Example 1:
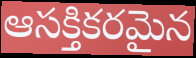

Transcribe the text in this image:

ఆసక్తికరమైన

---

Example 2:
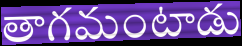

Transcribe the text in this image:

తాగమంటాడు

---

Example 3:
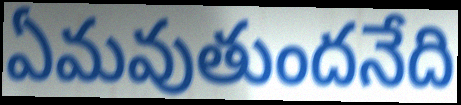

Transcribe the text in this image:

ఏమవుతుందనేది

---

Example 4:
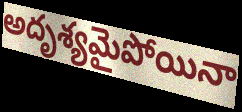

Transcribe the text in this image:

అదృశ్యమైపోయినా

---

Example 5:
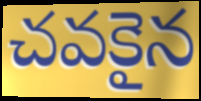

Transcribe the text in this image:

చవకైన